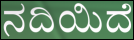
ನದಿಯಿದೆ